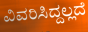
ವಿವರಿಸಿದ್ದಲ್ಲದೆ